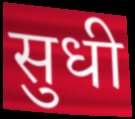
सुधी